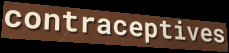
contraceptives